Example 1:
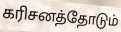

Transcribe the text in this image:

கரிசனத்தோடும்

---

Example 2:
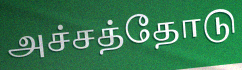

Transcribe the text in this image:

அச்சத்தோடு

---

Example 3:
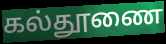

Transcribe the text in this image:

கல்தூணை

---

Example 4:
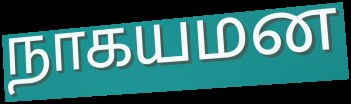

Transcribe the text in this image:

நாகயமன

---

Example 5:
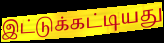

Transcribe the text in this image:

இட்டுக்கட்டியது